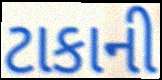
ટાકાની